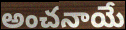
అంచనాయే